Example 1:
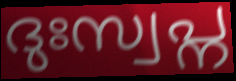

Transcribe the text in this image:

ദുഃസ്വപ്ന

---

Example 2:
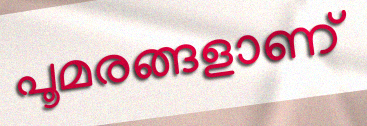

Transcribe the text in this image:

പൂമരങ്ങളാണ്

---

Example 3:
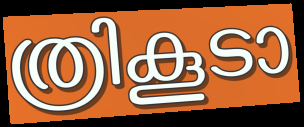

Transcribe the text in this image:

ത്രികൂടാ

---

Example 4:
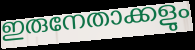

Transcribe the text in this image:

ഇരുനേതാക്കളും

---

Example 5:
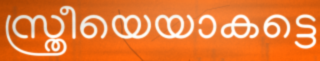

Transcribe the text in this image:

സ്ത്രീയെയാകട്ടെ